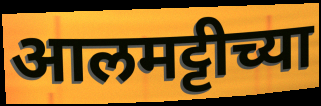
आलमट्टीच्या